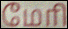
மேரி